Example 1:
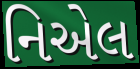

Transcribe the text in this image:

નિએલ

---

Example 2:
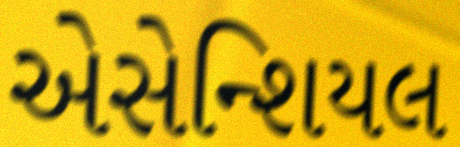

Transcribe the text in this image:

એસેન્શિયલ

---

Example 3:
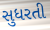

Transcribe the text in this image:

સુધરતી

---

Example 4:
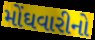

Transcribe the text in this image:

મોંઘવારીનો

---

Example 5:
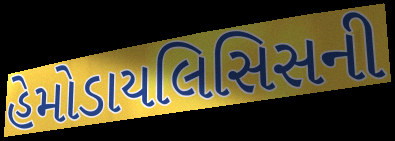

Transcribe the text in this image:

હેમોડાયલિસિસની